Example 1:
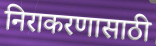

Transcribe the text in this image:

निराकरणासाठी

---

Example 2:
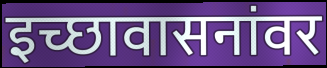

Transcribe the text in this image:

इच्छावासनांवर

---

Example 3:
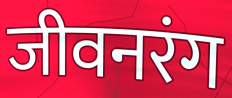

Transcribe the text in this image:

जीवनरंग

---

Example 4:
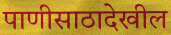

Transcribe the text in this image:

पाणीसाठादेखील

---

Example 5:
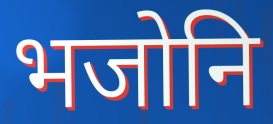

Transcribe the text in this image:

भजोनि